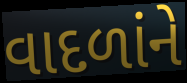
વાદળાંને